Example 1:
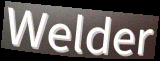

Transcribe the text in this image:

Welder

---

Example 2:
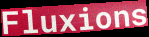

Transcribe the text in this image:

Fluxions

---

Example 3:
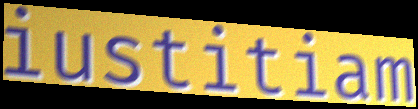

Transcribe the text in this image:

iustitiam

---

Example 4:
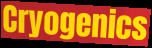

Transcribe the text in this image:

Cryogenics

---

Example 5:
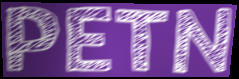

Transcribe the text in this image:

PETN